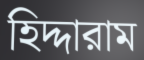
হিদ্দারাম